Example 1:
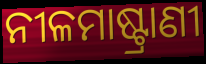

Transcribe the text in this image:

ନୀଳମାଷ୍ଟ୍ରାଣୀ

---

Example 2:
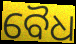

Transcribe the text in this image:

ବୈଧ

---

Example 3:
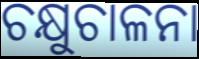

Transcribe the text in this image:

ଚକ୍ଷୁଚାଳନା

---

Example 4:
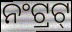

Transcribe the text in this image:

ନଂଟ୍ରଟ୍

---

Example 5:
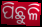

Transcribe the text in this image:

ପିଛୁଳି